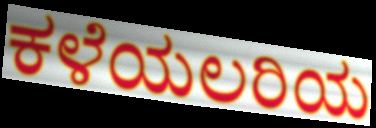
ಕಳೆಯಲರಿಯ